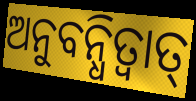
ଅନୁବନ୍ଧିତ୍ଵାତ୍